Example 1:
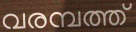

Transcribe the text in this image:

വരമ്പത്ത്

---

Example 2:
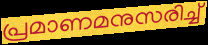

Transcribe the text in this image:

പ്രമാണമനുസരിച്ച്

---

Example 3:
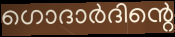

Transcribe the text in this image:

ഗൊദാർദിന്റെ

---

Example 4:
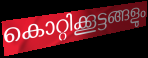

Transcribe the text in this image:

കൊറ്റിക്കൂട്ടങ്ങളും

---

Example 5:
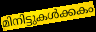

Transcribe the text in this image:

മിനിട്ടുകൾക്കകം